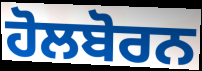
ਹੋਲਬੋਰਨ